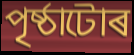
পৃষ্ঠাটোৰ